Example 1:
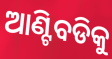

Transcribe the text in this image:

ଆଣ୍ଟିବଡିକୁ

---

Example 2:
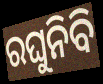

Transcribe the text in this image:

ରଘୁନିବି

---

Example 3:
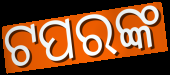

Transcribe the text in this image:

ଟପରଙ୍କ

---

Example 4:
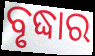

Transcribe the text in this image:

ବୃଦ୍ଧାର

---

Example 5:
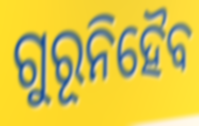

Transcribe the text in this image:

ଗୁରୂନିହୈବ